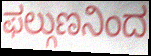
ಫಲ್ಗುಣನಿಂದ